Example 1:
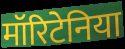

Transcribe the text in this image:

मॉरिटेनिया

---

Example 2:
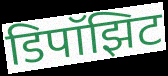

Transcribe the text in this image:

डिपॉझिट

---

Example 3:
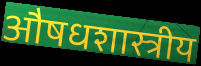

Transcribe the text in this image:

औषधशास्त्रीय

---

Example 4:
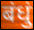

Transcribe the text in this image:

बंधुं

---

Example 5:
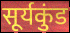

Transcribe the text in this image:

सूर्यकुंड